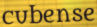
cubense